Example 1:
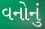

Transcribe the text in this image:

વનોનું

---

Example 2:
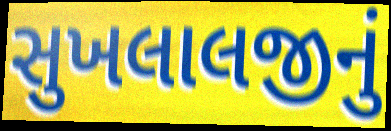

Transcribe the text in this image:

સુખલાલજીનું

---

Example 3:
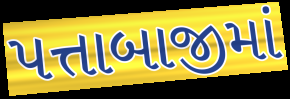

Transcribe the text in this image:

પત્તાબાજીમાં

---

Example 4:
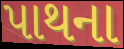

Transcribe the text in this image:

પાથના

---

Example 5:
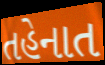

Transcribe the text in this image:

તહેનાત